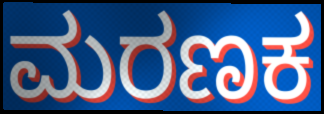
ಮರಣಕ